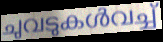
ചുവടുകൾവച്ച്